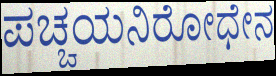
ಪಚ್ಚಯನಿರೋಧೇನ